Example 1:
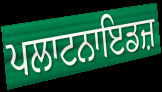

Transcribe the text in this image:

ਪਲਾਟਨਾਇਡਜ਼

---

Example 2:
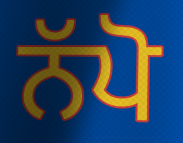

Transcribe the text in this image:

ਨੱਪੋ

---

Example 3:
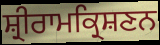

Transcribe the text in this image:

ਸ਼੍ਰੀਰਾਮਕ੍ਰਿਸ਼ਣਨ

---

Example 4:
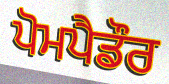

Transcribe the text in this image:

ਪੋਮਪੈਡੌਰ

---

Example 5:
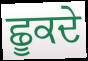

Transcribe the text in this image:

ਛੂਕਦੇ